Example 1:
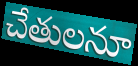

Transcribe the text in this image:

చేతులనూ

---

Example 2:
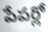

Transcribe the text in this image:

పేపర్లో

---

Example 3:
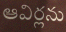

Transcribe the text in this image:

ఆవిర్లను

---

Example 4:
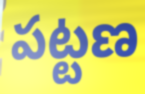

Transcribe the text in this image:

పట్టణ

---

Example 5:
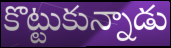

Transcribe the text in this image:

కొట్టుకున్నాడు